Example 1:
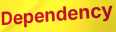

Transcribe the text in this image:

Dependency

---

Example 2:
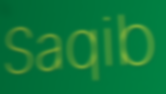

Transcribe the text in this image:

Saqib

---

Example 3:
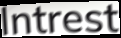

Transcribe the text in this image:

Intrest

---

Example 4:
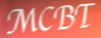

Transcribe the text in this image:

MCBT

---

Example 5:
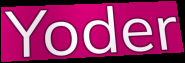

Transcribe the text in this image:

Yoder